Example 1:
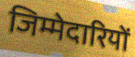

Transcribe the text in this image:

जिम्मेदारियों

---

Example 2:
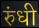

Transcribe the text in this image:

रुंधी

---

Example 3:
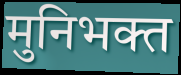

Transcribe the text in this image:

मुनिभक्त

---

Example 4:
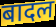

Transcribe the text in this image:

बादल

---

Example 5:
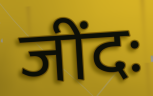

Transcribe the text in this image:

जींदः